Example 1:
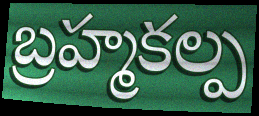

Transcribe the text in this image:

బ్రహ్మకల్ప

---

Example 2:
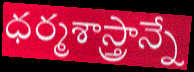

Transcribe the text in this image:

ధర్మశాస్త్రాన్నే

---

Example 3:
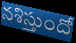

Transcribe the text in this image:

నశిస్తుందో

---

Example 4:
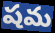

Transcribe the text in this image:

షమ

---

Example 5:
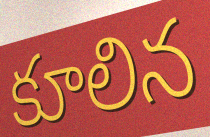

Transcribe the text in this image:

కూలిన